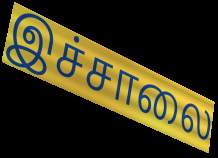
இச்சாலை